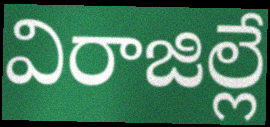
విరాజిల్లే